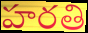
హరతి